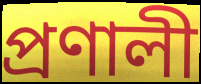
প্ৰণালী